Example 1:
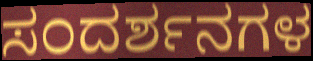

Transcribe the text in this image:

ಸಂದರ್ಶನಗಳ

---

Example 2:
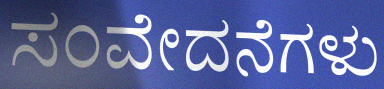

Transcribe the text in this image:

ಸಂವೇದನೆಗಳು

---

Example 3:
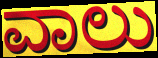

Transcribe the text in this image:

ವಾಲು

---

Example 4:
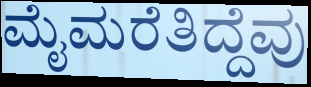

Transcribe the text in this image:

ಮೈಮರೆತಿದ್ದೆವು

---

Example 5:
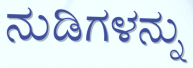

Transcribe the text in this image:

ನುಡಿಗಳನ್ನು